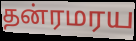
தன்ரமரய